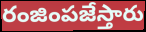
రంజింపజేస్తారు